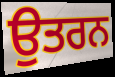
ਉਤਰਨ